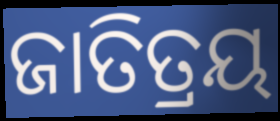
ଜାତିତ୍ରୟ